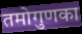
तमोगुणका